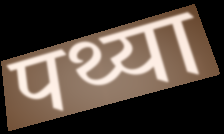
पथ्या